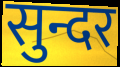
सुन्दर